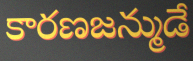
కారణజన్ముడే